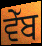
ਵੇੱਬ